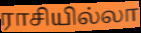
ராசியில்லா